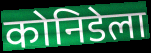
कोनिडेला